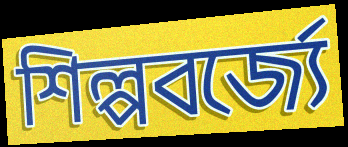
শিল্পবর্জ্যে